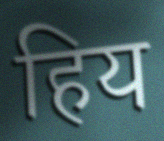
हिय